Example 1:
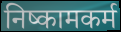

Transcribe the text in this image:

निष्कामकर्म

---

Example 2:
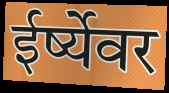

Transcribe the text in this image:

ईर्ष्येवर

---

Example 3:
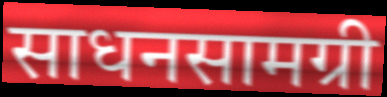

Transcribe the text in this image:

साधनसामग्री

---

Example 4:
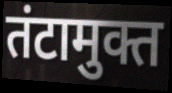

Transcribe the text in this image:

तंटामुक्त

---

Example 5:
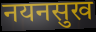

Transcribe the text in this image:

नयनसुख